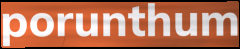
porunthum